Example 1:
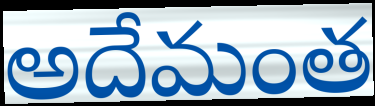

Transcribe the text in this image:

అదేమంత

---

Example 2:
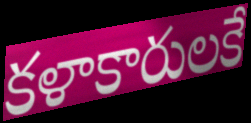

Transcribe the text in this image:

కళాకారులకే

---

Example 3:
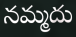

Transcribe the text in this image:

నమ్మదు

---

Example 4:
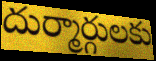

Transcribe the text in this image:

దుర్మార్గులకు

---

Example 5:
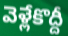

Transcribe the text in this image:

వెళ్లేకొద్దీ